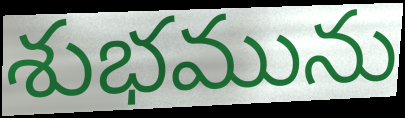
శుభమును